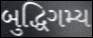
બુદ્ધિગમ્ય